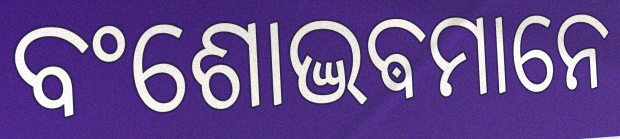
ବଂଶୋଦ୍ଭଵମାନେ